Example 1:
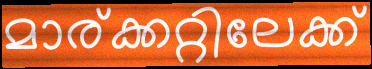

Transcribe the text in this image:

മാര്ക്കറ്റിലേക്ക്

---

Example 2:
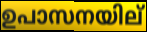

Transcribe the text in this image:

ഉപാസനയില്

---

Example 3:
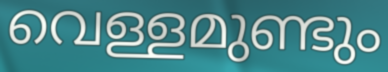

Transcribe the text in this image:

വെള്ളമുണ്ടും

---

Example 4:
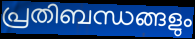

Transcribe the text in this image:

പ്രതിബന്ധങ്ങളും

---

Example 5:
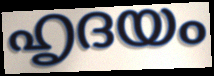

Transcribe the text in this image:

ഹൃദയം